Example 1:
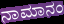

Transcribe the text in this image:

ನಾಮಾನಂ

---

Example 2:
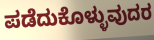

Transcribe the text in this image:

ಪಡೆದುಕೊಳ್ಳುವುದರ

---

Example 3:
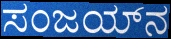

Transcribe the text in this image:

ಸಂಜಯ್‌ನ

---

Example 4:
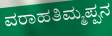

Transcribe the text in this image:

ವರಾಹತಿಮ್ಮಪ್ಪನ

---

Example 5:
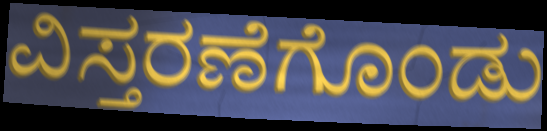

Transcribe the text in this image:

ವಿಸ್ತರಣೆಗೊಂಡು